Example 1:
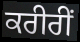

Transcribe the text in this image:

ਕਰੀਰੀਂ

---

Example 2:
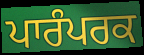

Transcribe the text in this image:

ਪਾਰੰਪਰਕ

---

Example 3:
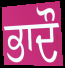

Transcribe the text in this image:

ਭਾਦੌ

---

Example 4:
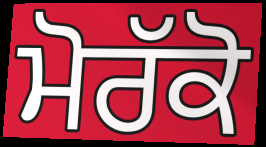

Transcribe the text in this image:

ਮੋਰੱਕੋ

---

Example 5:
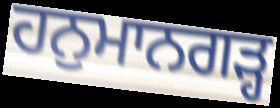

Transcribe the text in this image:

ਹਨੁਮਾਨਗੜ੍ਹ